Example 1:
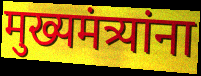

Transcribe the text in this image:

मुख्यमंत्र्यांना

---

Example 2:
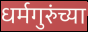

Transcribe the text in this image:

धर्मगुरुंच्या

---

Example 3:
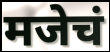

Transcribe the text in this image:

मजेचं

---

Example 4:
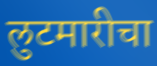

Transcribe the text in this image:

लुटमारीचा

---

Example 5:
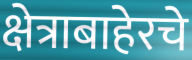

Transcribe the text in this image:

क्षेत्राबाहेरचे